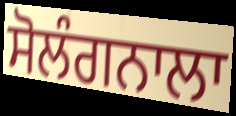
ਸੋਲੰਗਨਾਲਾ